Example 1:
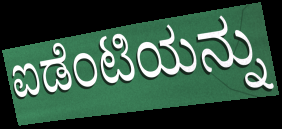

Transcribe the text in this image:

ಐಡೆಂಟಿಯನ್ನು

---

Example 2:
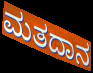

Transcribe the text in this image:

ಮತದಾನ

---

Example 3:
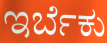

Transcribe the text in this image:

ಇರ್ಬೆಕು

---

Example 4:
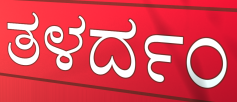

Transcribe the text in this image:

ತಳರ್ದಂ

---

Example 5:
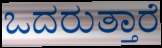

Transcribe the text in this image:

ಒದರುತ್ತಾರೆ